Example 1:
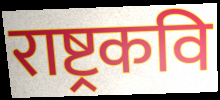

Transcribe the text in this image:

राष्ट्रकवि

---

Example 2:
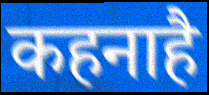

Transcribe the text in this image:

कहनाहै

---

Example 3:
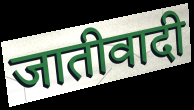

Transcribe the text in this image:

जातीवादी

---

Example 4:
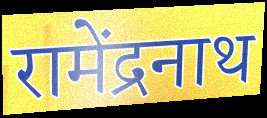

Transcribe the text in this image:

रामेंद्रनाथ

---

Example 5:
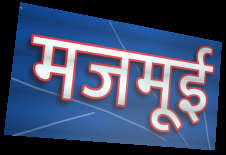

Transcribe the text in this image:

मजमूई